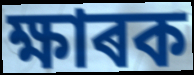
ক্ষাৰক